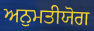
ਅਨੁਮਤੀਯੋਗ